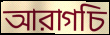
আরাগচি